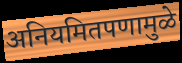
अनियमितपणामुळे